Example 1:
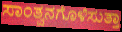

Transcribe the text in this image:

ಸಾಂತ್ವನಗೊಳಿಸುತ್ತಾ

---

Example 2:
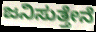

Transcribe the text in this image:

ಜನಿಸುತ್ತೇನೆ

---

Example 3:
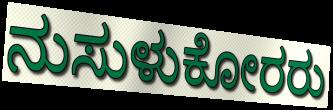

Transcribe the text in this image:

ನುಸುಳುಕೋರರು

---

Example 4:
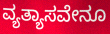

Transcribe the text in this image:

ವ್ಯತ್ಯಾಸವೇನೂ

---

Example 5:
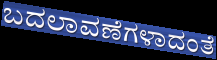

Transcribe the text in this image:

ಬದಲಾವಣೆಗಳಾದಂತೆ